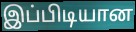
இப்பிடியான